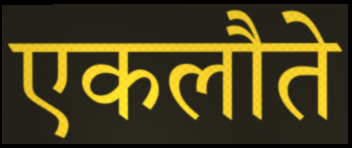
एकलौते